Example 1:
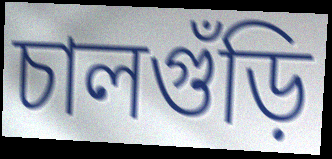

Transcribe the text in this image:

চালগুঁড়ি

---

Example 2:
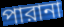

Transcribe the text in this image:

পারানা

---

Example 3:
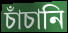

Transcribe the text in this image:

চাঁচানি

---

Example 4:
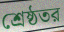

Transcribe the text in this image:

শ্রেষ্ঠতর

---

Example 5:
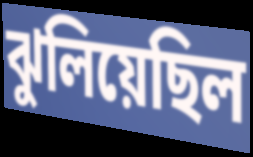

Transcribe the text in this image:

ঝুলিয়েছিল